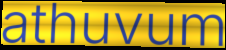
athuvum